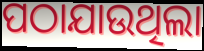
ପଠାଯାଉଥିଲା